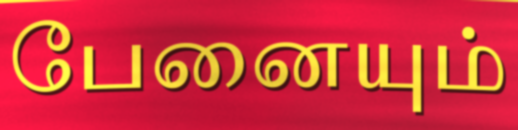
பேனையும்